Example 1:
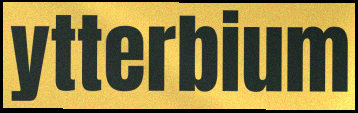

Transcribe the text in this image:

ytterbium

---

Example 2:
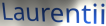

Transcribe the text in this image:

Laurentii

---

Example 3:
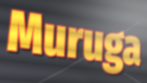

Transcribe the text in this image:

Muruga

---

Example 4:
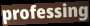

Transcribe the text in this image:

professing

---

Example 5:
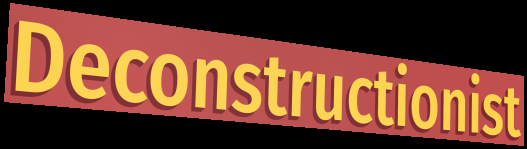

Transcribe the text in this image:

Deconstructionist